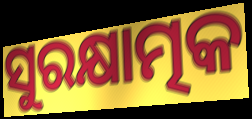
ସୁରକ୍ଷାତ୍ମକ